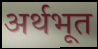
अर्थभूत